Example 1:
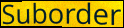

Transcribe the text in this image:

Suborder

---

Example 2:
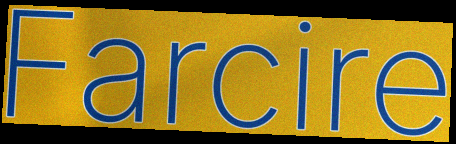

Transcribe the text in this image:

Farcire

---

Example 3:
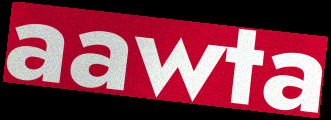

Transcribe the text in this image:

aawta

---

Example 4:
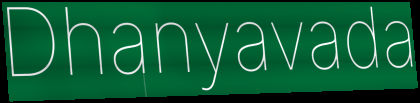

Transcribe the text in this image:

Dhanyavada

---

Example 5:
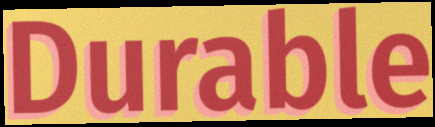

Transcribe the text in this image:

Durable